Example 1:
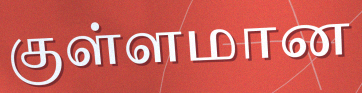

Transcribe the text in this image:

குள்ளமான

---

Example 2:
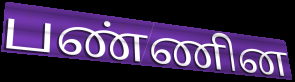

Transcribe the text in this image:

பண்ணின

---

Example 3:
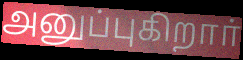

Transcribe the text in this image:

அனுப்புகிறார்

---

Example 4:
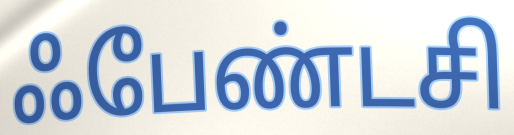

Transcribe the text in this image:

ஃபேண்டசி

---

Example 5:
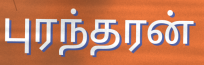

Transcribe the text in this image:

புரந்தரன்